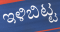
ಇಳಿಬಿಟ್ಟ